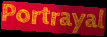
Portrayal